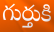
గుర్తుకి